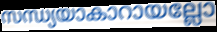
സന്ധ്യയാകാറായല്ലോ